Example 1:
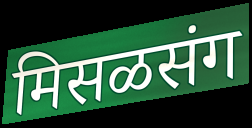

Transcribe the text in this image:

मिसळसंग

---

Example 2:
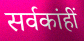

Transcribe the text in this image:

सर्वकांहीं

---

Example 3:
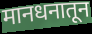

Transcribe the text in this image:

मानधनातून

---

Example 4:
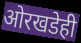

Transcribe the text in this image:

ओरखडेही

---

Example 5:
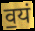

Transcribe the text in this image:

व॒यं